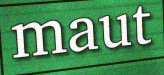
maut